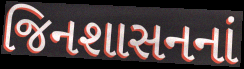
જિનશાસનનાં